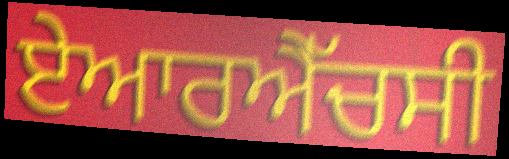
ਏਆਰਐੱਚਸੀ